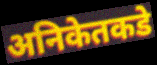
अनिकेतकडे